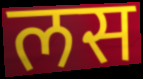
लस